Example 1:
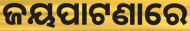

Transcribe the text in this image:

ଜୟପାଟଣାରେ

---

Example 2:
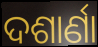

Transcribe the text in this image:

ଦଶାର୍ଣା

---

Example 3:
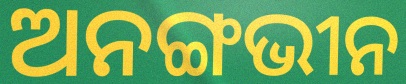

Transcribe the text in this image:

ଅନଙ୍ଗଭୀନ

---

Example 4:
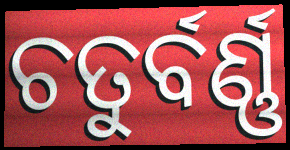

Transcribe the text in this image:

ଚତୁର୍ବର୍ଣ୍ଣ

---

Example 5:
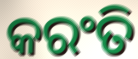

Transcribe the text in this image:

କରଂତି